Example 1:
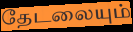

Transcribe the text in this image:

தேடலையும்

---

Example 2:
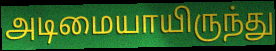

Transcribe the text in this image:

அடிமையாயிருந்து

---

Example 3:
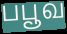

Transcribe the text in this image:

பபூவ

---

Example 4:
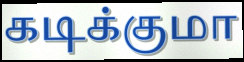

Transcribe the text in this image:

கடிக்குமா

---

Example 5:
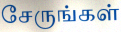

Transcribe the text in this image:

சேருங்கள்